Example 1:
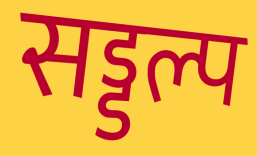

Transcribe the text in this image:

सड्डल्प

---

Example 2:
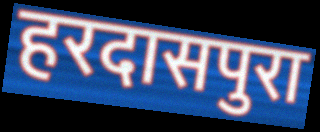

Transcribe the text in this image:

हरदासपुरा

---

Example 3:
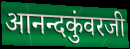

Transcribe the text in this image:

आनन्दकुंवरजी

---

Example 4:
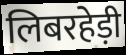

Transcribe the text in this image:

लिबरहेड़ी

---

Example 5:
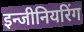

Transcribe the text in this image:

इन्जीनियरिंग